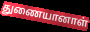
துணையானாள்